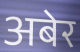
अबेर